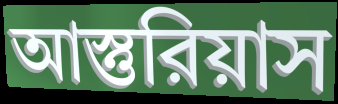
আস্তুরিয়াস